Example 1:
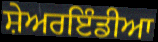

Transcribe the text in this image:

ਸ਼ੇਅਰਇੰਡੀਆ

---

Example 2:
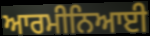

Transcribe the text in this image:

ਆਰਮੀਨਿਆਈ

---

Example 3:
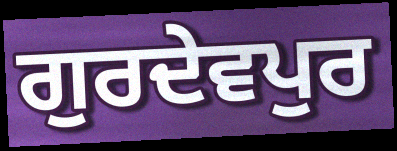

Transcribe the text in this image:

ਗੁਰਦੇਵਪੁਰ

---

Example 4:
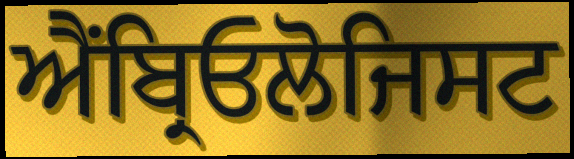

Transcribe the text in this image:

ਐਂਬ੍ਰਿਓਲੋਜਿਸਟ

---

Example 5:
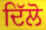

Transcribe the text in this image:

ਦਿੱਲੋ